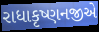
રાધાકૃષ્ણનજીએ